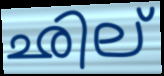
ഛില്